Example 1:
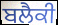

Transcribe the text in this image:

ਬਲੈਕੀ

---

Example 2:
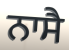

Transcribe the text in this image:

ਨਾਸੈ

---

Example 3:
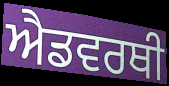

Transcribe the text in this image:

ਐਡਵਰਥੀ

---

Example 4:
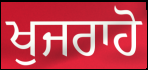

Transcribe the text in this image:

ਖੁਜਰਾਹੋ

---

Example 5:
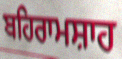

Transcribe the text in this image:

ਬਹਿਰਾਮਸ਼ਾਹ